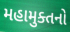
મહામુક્તનો